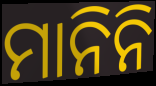
ମାନିନି